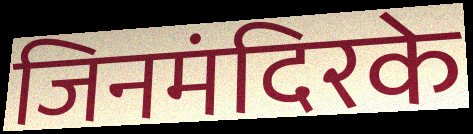
जिनमंदिरके